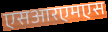
एसआरएमएस